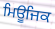
ਮਿਊਜਿਕ